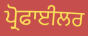
ਪ੍ਰੋਫਾਈਲਰ